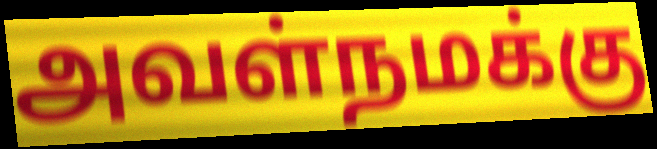
அவள்நமக்கு